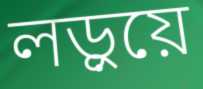
লড়ুয়ে